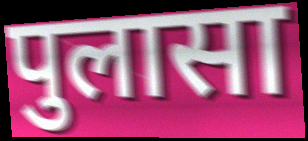
पुलासा